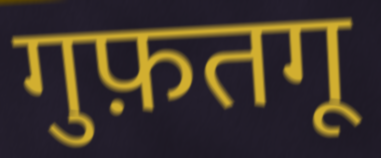
गुफ़तगू